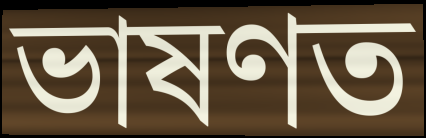
ভাষণত